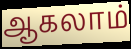
ஆகலாம்